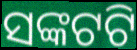
ସଙ୍କଟଟି